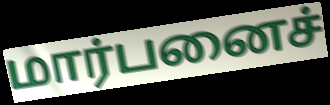
மார்பனைச்